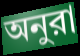
অনুরা